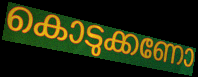
കൊടുക്കണോ